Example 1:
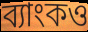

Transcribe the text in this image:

ব্যাংকও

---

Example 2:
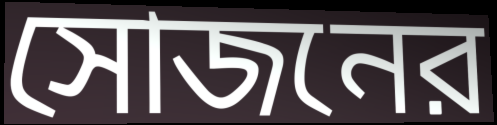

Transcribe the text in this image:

সোজনের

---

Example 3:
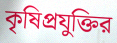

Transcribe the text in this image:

কৃষিপ্রযুক্তির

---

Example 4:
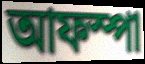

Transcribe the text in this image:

আফস্পা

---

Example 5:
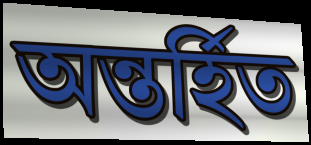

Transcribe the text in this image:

অন্তর্হিত